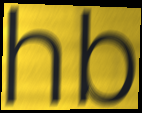
hb